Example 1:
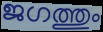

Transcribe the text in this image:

ജഗത്തും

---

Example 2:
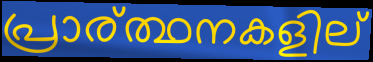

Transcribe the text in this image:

പ്രാര്ത്ഥനകളില്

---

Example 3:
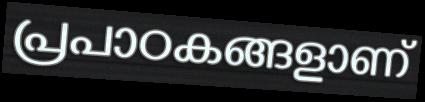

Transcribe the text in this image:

പ്രപാഠകങ്ങളാണ്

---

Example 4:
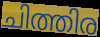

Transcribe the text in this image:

ചിത്തിര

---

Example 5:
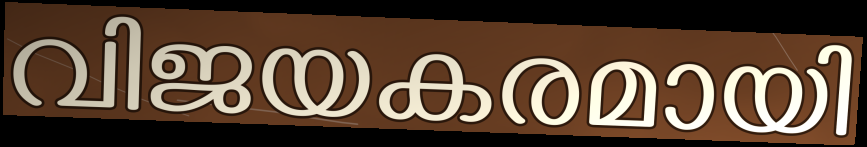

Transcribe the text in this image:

വിജയകരമായി